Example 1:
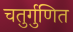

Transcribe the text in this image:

चतुर्गुणित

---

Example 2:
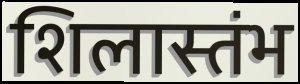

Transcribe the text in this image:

शिलास्तंभ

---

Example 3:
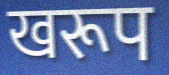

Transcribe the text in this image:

खरूप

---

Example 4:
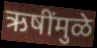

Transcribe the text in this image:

ऋषींमुळे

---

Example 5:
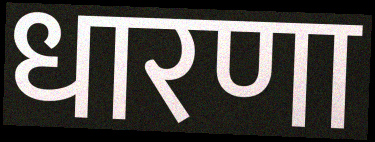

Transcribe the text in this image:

धारणा